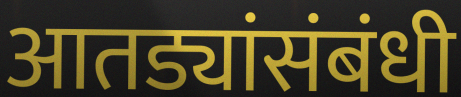
आतड्यांसंबंधी